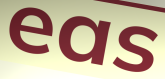
eas